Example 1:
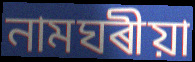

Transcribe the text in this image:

নামঘৰীয়া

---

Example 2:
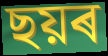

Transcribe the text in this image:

ছয়ৰ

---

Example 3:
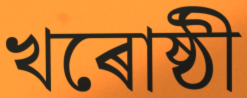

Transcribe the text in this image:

খৰোষ্ঠী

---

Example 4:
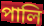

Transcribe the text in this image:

পালি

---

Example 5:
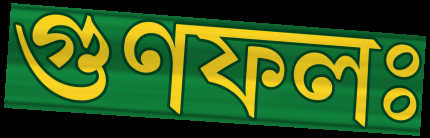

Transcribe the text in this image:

গুণফলঃ